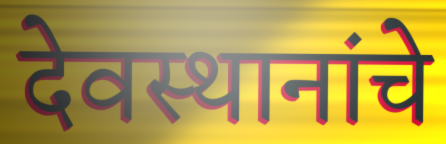
देवस्थानांचे